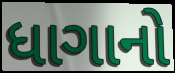
ધાગાનો